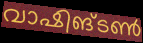
വാഷിങ്ടൺ